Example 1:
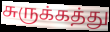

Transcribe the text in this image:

சுருக்கத்து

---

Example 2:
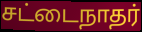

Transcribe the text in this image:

சட்டைநாதர்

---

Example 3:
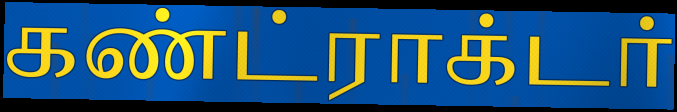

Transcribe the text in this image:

கண்ட்ராக்டர்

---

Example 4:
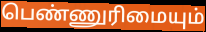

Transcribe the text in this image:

பெண்ணுரிமையும்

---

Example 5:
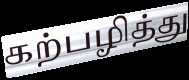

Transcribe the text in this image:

கற்பழித்து